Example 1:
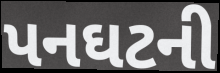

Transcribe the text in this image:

પનઘટની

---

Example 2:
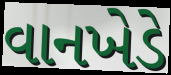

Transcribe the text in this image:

વાનખેડે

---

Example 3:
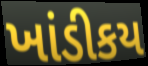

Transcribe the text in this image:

ખાંડીકય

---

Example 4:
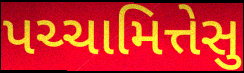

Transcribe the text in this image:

પચ્ચામિત્તેસુ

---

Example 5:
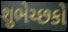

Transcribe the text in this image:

શુભેચ્છકો